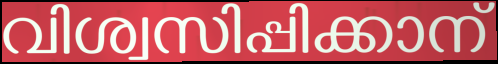
വിശ്വസിപ്പിക്കാന്